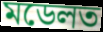
মডেলত